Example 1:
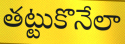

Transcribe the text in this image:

తట్టుకొనేలా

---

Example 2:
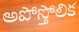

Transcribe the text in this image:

అపోస్తోలిక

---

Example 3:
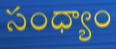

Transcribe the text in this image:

సంధ్యాం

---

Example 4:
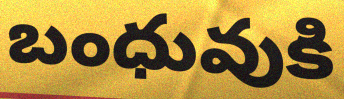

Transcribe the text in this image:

బంధువుకి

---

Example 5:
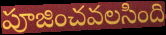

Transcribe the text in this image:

పూజించవలసింది